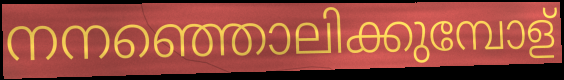
നനഞ്ഞൊലിക്കുമ്പോള്